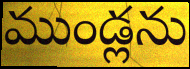
ముండ్లను